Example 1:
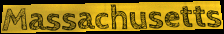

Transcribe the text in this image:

Massachusetts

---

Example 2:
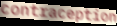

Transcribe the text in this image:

contraception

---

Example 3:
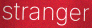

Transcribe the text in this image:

stranger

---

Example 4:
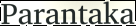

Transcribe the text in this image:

Parantaka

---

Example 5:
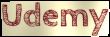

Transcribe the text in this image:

Udemy